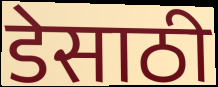
डेसाठी